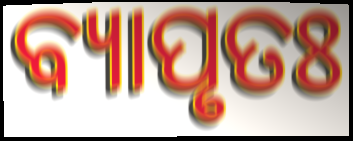
ବ୍ୟାପୃତଃ